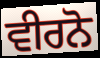
ਵੀਰਨੋ